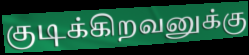
குடிக்கிறவனுக்கு